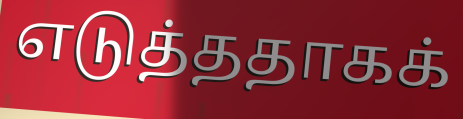
எடுத்ததாகக்